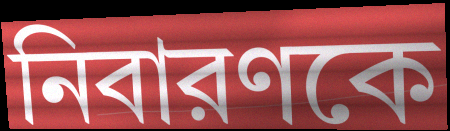
নিবারণকে